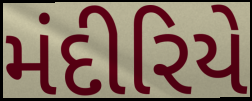
મંદીરિયે